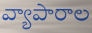
వ్యాపారాల